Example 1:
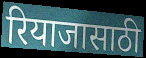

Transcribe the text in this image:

रियाजासाठी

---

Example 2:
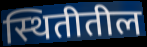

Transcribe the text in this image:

स्थितीतील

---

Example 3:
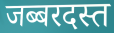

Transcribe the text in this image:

जब्बरदस्त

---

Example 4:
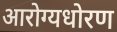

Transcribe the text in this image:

आरोग्यधोरण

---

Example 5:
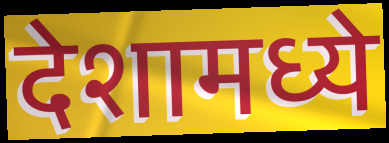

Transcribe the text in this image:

देशामध्ये